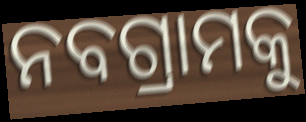
ନବଗ୍ରାମକୁ